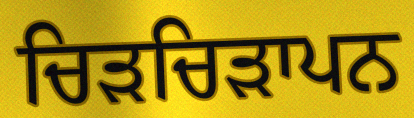
ਚਿੜਚਿੜਾਪਨ